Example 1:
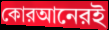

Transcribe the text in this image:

কোরআনেরই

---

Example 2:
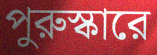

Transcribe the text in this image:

পুরুস্কারে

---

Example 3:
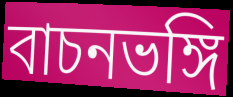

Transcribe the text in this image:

বাচনভঙ্গি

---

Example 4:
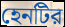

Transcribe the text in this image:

হেনটির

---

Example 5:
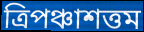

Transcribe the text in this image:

ত্রিপঞ্চাশত্তম